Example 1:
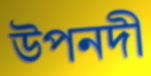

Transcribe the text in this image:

উপনদী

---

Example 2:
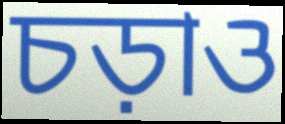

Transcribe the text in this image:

চড়াও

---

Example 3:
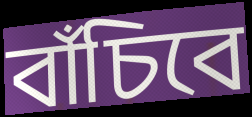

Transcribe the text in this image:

বাঁচিবে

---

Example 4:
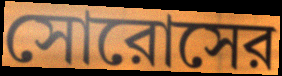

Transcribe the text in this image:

সোরোসের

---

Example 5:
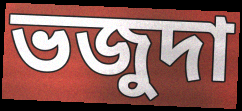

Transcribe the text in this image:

ভজুদা